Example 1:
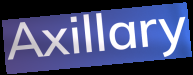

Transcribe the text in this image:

Axillary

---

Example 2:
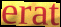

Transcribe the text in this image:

erat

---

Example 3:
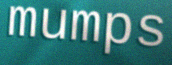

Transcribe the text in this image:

mumps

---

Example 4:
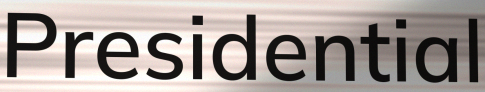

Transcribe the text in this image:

Presidential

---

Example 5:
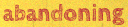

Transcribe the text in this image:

abandoning